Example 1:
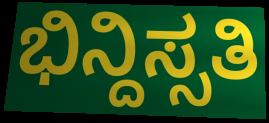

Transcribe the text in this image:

ಭಿನ್ದಿಸ್ಸತಿ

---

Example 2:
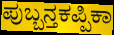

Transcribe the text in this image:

ಪುಬ್ಬನ್ತಕಪ್ಪಿಕಾ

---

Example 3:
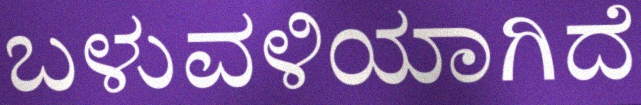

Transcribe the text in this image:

ಬಳುವಳಿಯಾಗಿದೆ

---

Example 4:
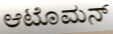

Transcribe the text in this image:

ಆಟೊಮನ್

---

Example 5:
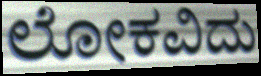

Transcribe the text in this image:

ಲೋಕವಿದು